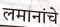
लमानांचे